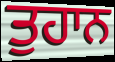
ਤੁਹਾਨ